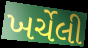
ખર્ચેલી